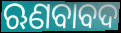
ଋଣବାବଦ